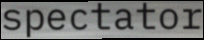
spectator